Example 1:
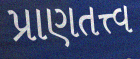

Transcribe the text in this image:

પ્રાણતત્ત્વ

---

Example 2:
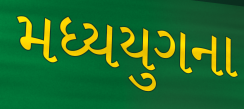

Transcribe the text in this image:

મધ્યયુગના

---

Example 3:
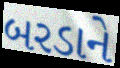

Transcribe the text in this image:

બરડાને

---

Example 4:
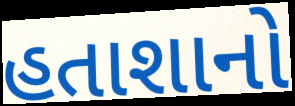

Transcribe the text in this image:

હતાશાનો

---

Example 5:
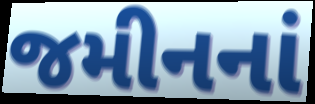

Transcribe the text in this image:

જમીનનાં